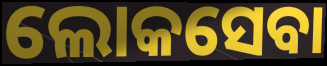
ଲୋକସେବା